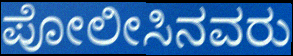
ಪೋಲೀಸಿನವರು